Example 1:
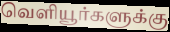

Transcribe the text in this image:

வெளியூர்களுக்கு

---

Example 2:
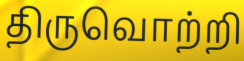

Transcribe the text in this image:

திருவொற்றி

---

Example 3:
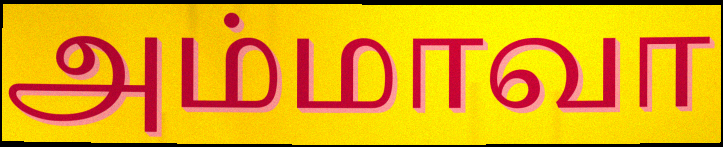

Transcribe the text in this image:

அம்மாவா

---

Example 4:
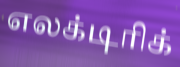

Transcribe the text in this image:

எலக்டிரிக்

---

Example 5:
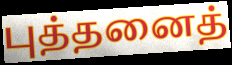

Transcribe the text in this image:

புத்தனைத்